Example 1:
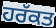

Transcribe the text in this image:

ਹਰੱਕਤ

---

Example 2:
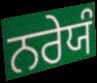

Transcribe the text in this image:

ਨਰੇਯੰ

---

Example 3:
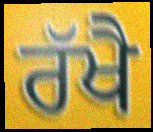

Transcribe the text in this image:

ਰੱਖੈ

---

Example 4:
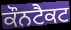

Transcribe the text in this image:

ਕੌਨਟੈਕਟ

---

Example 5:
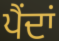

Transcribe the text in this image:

ਪੈਂਦਾਂ